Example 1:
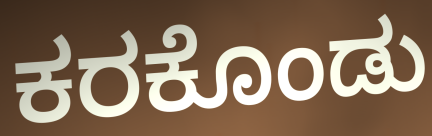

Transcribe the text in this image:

ಕರಕೊಂಡು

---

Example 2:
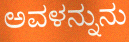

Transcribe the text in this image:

ಅವಳನ್ನುನು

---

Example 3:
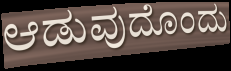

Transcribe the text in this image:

ಆಡುವುದೊಂದು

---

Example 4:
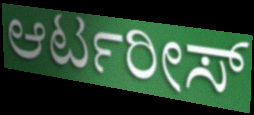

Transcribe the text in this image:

ಆರ್ಟರೀಸ್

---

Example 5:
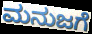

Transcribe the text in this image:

ಮನುಜಗೆ